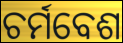
ଚର୍ମବେଶ